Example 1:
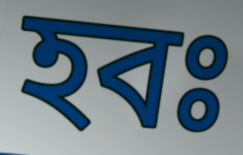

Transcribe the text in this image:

হবঃ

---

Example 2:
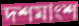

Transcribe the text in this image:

দশমাংশ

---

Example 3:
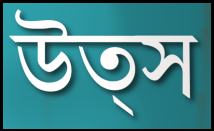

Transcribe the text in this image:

উত্স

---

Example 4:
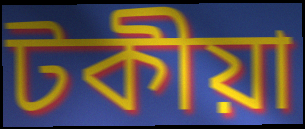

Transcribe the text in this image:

টকীয়া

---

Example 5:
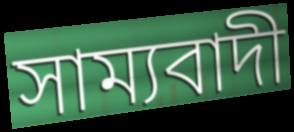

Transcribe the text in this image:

সাম্যবাদী